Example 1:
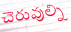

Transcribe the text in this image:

చెరువుల్ని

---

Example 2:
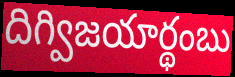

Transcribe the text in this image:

దిగ్విజయార్థంబు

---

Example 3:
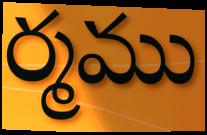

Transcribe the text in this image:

ర్మము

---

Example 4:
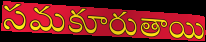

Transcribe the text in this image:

సమకూరుతాయి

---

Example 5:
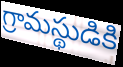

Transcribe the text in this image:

గ్రామస్థుడికి